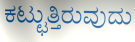
ಕಟ್ಟುತ್ತಿರುವುದು